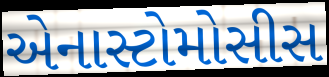
એનાસ્ટોમોસીસ